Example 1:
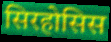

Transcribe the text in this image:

सिरहोसिस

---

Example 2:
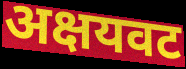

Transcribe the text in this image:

अक्षयवट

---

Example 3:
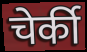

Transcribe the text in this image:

चेर्की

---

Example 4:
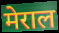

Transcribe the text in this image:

मेराल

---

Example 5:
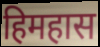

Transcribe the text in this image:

हिमहास